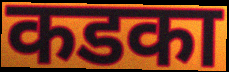
कडका